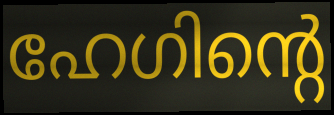
ഹേഗിന്റെ